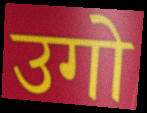
उगो